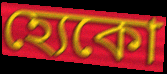
হ্যেকো